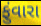
ફુંવારા